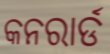
କନରାର୍ଡ